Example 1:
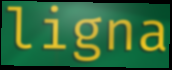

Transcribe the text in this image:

ligna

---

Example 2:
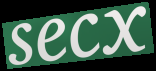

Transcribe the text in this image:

secx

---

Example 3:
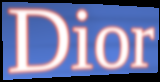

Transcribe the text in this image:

Dior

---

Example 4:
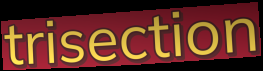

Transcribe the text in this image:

trisection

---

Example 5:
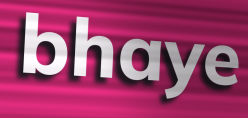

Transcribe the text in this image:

bhaye